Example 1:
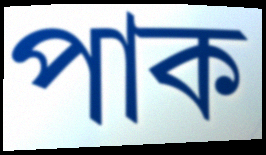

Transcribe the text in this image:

পাক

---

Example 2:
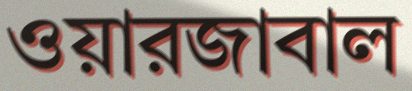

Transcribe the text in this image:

ওয়ারজাবাল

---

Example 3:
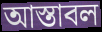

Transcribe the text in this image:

আস্তাবল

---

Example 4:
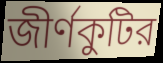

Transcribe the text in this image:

জীর্ণকুটির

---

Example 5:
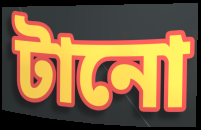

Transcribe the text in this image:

টানো